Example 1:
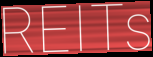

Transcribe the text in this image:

REITs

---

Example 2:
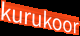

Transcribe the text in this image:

kurukoor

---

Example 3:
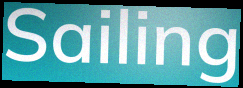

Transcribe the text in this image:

Sailing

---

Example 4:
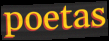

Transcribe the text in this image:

poetas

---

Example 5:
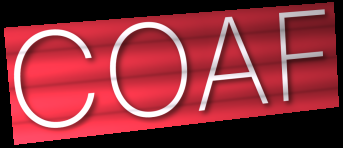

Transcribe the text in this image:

COAF